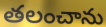
తలంచాను